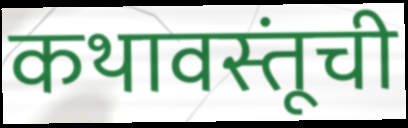
कथावस्तूंची